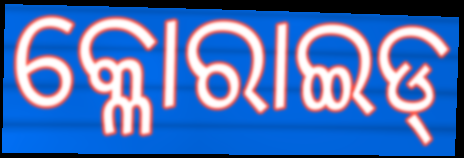
କ୍ଳୋରାଇଡ୍